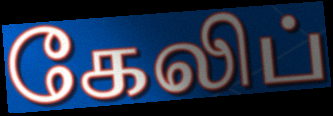
கேலிப்